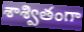
శాశ్వితంగా